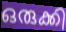
ഒരുക്കി